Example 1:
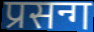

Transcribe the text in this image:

प्रसन्ग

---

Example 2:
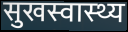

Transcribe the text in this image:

सुखस्वास्थ्य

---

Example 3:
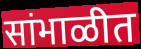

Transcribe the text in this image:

सांभाळीत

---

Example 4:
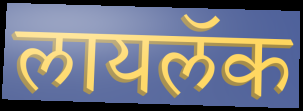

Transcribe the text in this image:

लायलॅक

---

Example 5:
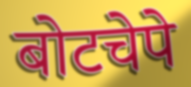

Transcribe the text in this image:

बोटचेपे